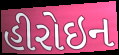
હીરોઇન